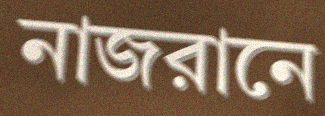
নাজরানে